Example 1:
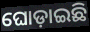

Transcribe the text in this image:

ଘୋଡ଼ାଇଛି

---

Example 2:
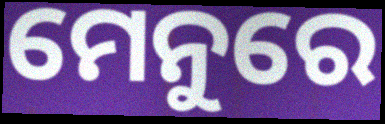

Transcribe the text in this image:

ମେନୁରେ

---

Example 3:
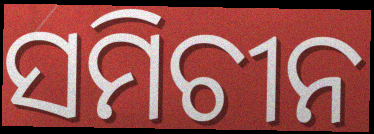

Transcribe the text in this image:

ସମିଚୀନ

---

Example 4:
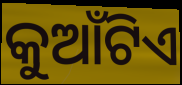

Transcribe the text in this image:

କୁଆଁଟିଏ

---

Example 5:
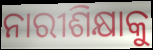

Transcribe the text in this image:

ନାରୀଶିକ୍ଷାକୁ